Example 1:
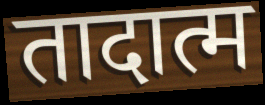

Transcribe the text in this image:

तादात्म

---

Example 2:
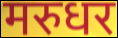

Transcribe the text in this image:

मरुधर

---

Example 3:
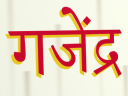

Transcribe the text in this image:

गजेंद्र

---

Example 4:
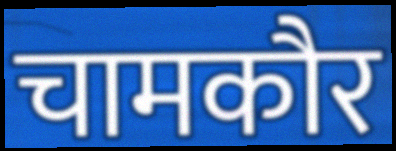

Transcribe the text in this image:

चामकौर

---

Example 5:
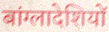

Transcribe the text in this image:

बांग्लादेशियों